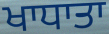
ਖਾਧਾਤਾ